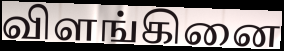
விளங்கினை